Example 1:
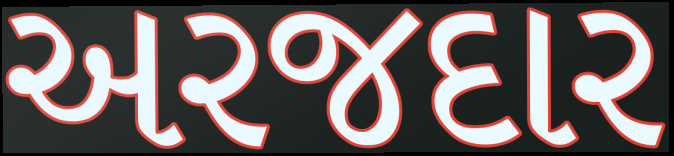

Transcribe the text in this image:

અરજદાર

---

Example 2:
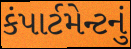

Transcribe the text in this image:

કંપાર્ટમેન્ટનું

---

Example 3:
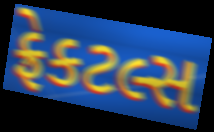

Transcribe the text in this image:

ફ્રેકટલ્સ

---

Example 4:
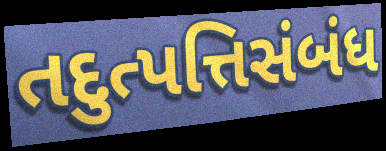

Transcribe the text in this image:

તદુત્પત્તિસંબંધ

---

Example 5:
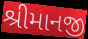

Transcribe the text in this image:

શ્રીમાનજી